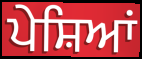
ਪੇਸ਼ਿਆਂ